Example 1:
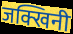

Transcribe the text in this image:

जक्खिनी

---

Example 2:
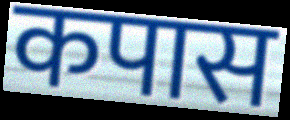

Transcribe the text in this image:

कपास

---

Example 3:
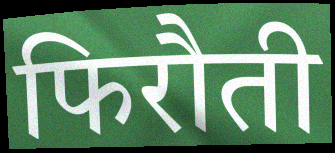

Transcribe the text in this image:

फिरौती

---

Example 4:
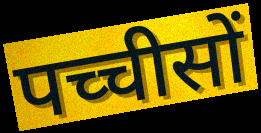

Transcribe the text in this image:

पच्चीसों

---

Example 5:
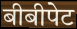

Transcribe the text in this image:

बीबीपेट